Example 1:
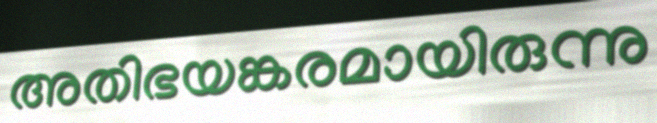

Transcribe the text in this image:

അതിഭയങ്കരമായിരുന്നു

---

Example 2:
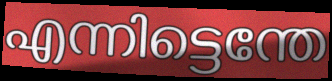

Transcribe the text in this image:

എന്നിട്ടെന്തേ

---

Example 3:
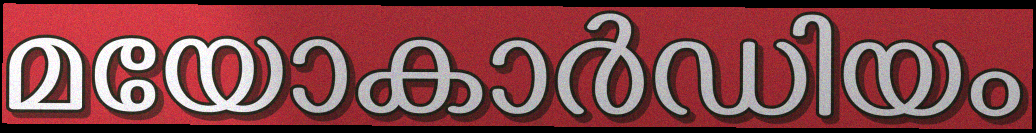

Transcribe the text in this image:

മയോകാർഡിയം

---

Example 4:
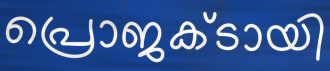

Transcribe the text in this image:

പ്രൊജക്ടായി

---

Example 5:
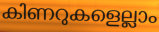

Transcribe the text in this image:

കിണറുകളെല്ലാം